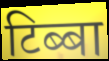
टिब्बा